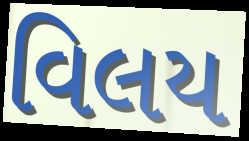
વિલય